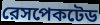
রেসপেকটেড